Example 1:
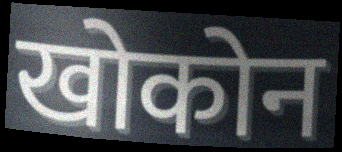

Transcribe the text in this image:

खोकोन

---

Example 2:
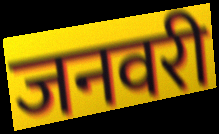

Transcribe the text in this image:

जनवरी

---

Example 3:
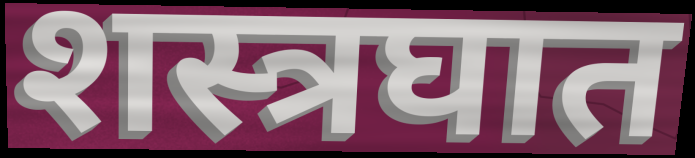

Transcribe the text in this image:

शस्त्रघात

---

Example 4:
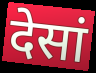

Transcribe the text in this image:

देसां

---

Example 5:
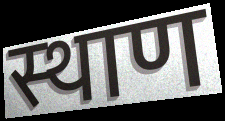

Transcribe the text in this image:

स्थाण